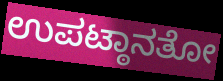
ಉಪಟ್ಠಾನತೋ